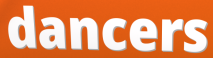
dancers